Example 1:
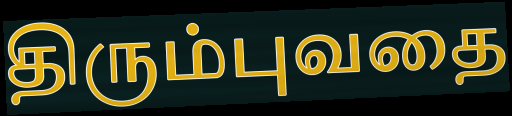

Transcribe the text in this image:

திரும்புவதை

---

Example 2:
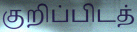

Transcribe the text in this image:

குறிப்பிடத்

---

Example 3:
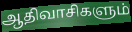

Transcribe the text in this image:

ஆதிவாசிகளும்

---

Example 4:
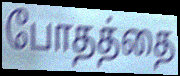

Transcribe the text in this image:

போதத்தை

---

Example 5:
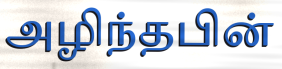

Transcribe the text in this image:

அழிந்தபின்